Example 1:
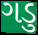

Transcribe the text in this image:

ગડુ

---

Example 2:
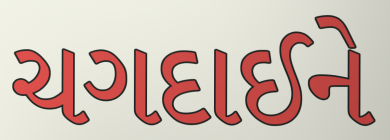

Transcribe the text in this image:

ચગદાઈને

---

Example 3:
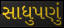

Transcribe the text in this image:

સાધુપણું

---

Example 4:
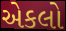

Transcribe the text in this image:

એકલો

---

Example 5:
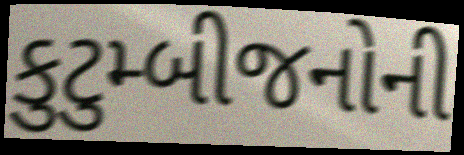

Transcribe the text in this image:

કુટુમ્બીજનોની